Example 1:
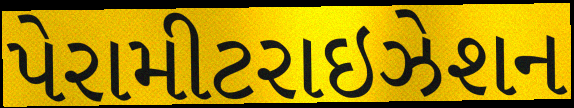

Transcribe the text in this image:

પેરામીટરાઇઝેશન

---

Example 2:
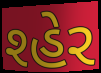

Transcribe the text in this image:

શ્હેર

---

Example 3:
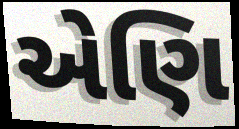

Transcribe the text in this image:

એણિ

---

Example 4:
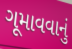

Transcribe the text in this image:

ગૂમાવવાનું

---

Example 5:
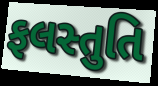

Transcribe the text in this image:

ફલસ્તુતિ